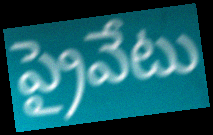
ప్రైవేటు